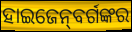
ହାଇଜେନ୍‌ବର୍ଗଙ୍କର